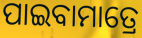
ପାଇବାମାତ୍ରେ